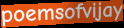
poemsofvijay